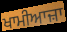
ਖਾਮੀਆਜ਼ਾ